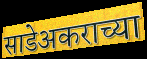
साडेअकराच्या